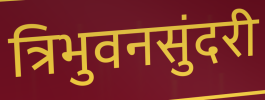
त्रिभुवनसुंदरी